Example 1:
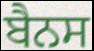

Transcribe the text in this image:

ਬੈਨਸ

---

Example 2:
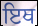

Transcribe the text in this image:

ਇਥ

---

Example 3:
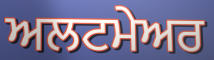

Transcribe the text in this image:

ਅਲਟਮੇਅਰ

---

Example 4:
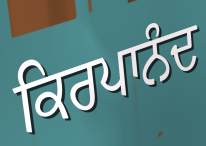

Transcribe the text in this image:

ਕਿਰਪਾਨੰਦ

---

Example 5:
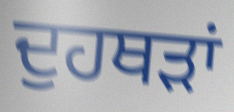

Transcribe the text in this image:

ਦੁਹਥੜਾਂ